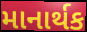
માનાર્થક